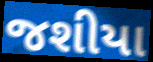
જશીયા